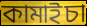
কামাইচা